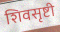
शिवसृष्टी